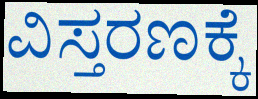
ವಿಸ್ತರಣಕ್ಕೆ